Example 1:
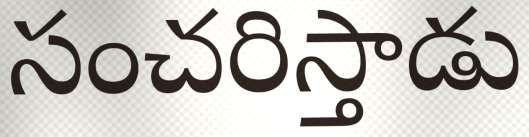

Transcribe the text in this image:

సంచరిస్తాడు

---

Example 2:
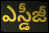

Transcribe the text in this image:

ఎస్డీజీ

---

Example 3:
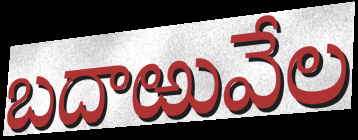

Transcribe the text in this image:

బదాఱువేల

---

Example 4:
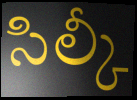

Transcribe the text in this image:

సిల్కీ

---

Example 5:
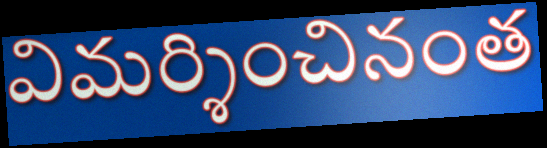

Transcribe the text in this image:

విమర్శించినంత